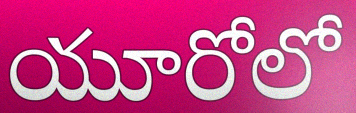
యూరోలో